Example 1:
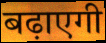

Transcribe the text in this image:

बढ़ाएगी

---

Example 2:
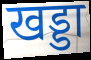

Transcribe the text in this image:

खड्डा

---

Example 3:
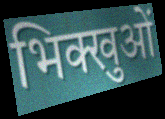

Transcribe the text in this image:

भिक्खुओं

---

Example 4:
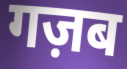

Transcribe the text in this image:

गज़ब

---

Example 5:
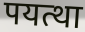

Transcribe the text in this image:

पयत्था